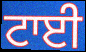
ਟਾਈ